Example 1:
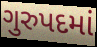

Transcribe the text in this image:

ગુરુપદમાં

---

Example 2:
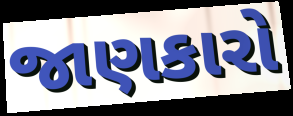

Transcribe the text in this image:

જાણકારો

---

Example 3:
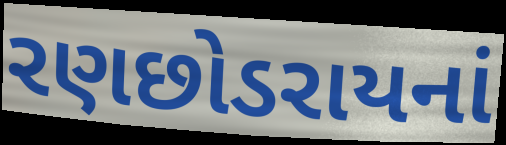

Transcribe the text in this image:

રણછોડરાયનાં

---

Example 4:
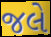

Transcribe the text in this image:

જલે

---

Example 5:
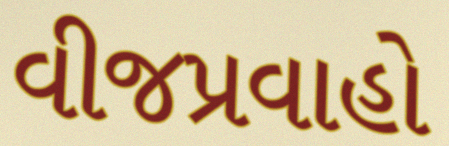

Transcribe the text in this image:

વીજપ્રવાહો